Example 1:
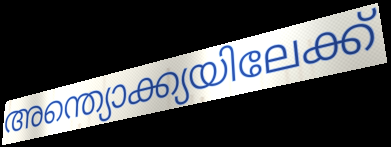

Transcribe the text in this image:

അന്ത്യൊക്ക്യയിലേക്ക്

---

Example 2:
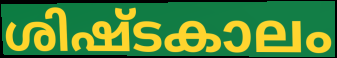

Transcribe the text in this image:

ശിഷ്ടകാലം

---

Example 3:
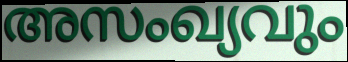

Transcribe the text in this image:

അസംഖ്യവും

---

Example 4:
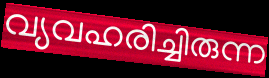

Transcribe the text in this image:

വ്യവഹരിച്ചിരുന്ന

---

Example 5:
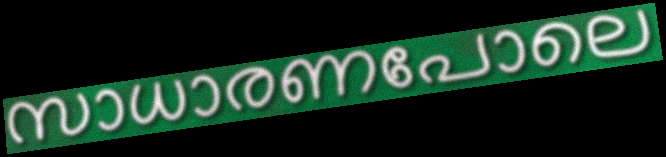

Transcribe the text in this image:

സാധാരണപോലെ